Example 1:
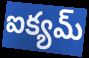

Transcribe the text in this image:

ఐక్యమ్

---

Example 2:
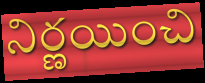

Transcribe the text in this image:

నిర్ణయించి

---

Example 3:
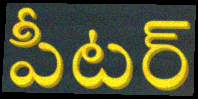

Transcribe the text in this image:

పీటర్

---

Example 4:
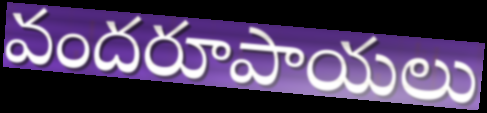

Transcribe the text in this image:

వందరూపాయలు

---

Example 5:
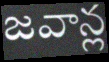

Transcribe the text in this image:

జవాన్ల